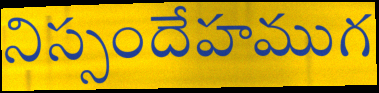
నిస్సందేహముగ